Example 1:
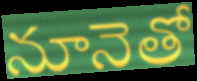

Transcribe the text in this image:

నూనెతో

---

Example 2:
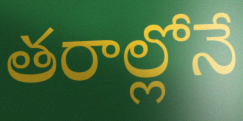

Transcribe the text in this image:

తరాల్లోనే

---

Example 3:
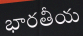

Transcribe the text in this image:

భారతీయ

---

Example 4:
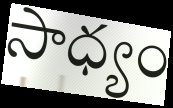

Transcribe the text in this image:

సాధ్యం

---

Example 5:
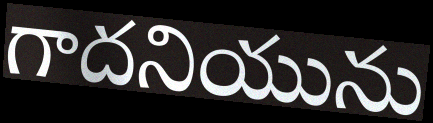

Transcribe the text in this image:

గాదనియును